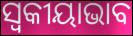
ସ୍ୱକୀୟାଭାବ